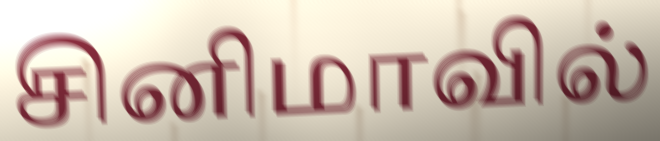
சினிமாவில்